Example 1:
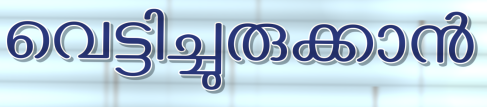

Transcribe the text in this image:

വെട്ടിച്ചുരുക്കാൻ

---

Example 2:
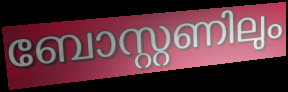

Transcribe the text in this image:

ബോസ്റ്റണിലും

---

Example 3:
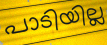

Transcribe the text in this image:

പാടിയില്ല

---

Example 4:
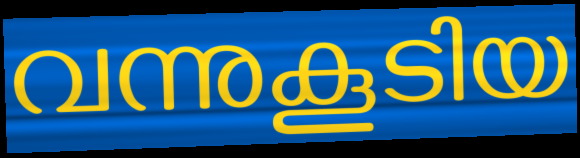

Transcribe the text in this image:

വന്നുകൂടിയ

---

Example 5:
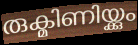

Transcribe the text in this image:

രുക്മിണിയ്ക്കും